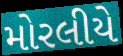
મોરલીયે